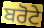
ਬਰੋਟੇ